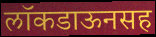
लॉकडाऊनसह